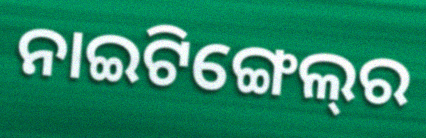
ନାଇଟିଙ୍ଗେଲ୍‌ର